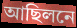
আছিলনে